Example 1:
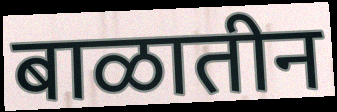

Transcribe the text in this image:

बाळातीन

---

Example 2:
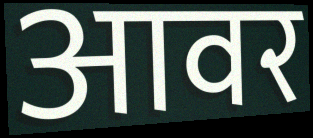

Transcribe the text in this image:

आवर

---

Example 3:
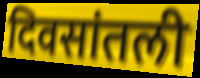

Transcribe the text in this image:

दिवसांतली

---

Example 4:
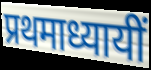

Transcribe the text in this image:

प्रथमाध्यायीं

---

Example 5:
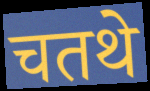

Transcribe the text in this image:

चतथे